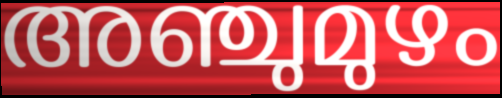
അഞ്ചുമുഴം